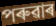
পৰুৱাৰ